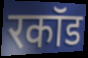
रकॉड